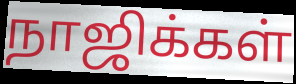
நாஜிக்கள்